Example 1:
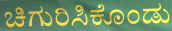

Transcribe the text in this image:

ಚಿಗುರಿಸಿಕೊಂಡು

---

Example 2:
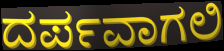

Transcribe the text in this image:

ದರ್ಪವಾಗಲಿ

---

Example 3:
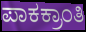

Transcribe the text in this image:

ಪಾಕಕ್ರಾಂತಿ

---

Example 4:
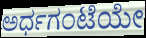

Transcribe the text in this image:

ಅರ್ಧಗಂಟೆಯೇ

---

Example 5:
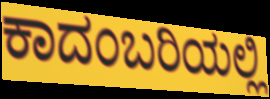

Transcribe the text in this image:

ಕಾದಂಬರಿಯಲ್ಲಿ